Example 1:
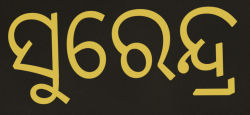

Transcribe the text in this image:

ସୁରେନ୍ଦ୍ର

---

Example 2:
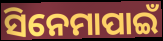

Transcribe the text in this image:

ସିନେମାପାଇଁ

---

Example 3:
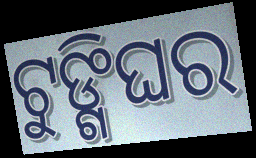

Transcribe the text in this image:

ଟୁଙ୍ଗିଘର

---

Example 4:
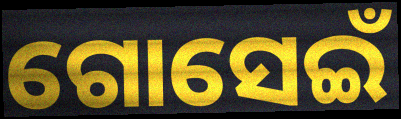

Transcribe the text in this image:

ଗୋସେଇଁ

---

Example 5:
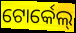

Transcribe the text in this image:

ଟୋର୍କେଲ୍